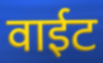
वाईट